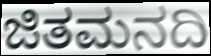
ಜಿತಮನದಿ